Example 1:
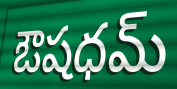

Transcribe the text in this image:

ఔషధమ్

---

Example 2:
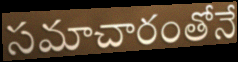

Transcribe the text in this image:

సమాచారంతోనే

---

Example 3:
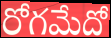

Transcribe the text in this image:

రోగమేదో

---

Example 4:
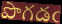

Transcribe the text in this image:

పొగడఁ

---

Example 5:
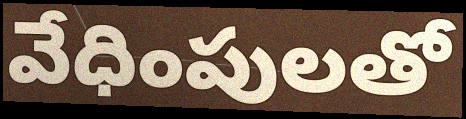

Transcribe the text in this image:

వేధింపులతో